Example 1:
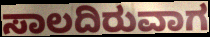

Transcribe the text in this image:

ಸಾಲದಿರುವಾಗ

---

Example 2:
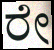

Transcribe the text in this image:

ರೇ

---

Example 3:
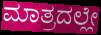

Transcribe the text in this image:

ಮಾತ್ರದಲ್ಲೇ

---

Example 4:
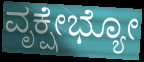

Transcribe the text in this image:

ವೃಕ್ಷೇಭ್ಯೋ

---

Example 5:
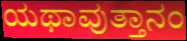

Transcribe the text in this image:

ಯಥಾವುತ್ತಾನಂ